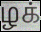
ழக்